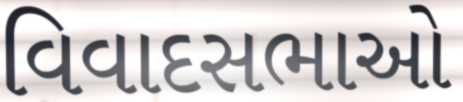
વિવાદસભાઓ